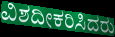
ವಿಶದೀಕರಿಸಿದರು